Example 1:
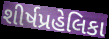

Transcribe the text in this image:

શીર્ષપ્રહેલિકા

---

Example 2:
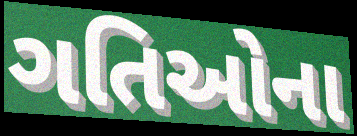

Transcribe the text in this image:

ગતિઓના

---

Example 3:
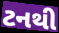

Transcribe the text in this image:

ટનથી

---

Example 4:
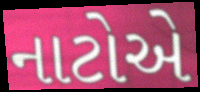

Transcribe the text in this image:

નાટોએ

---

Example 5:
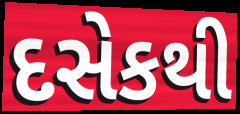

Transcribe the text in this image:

દસેકથી